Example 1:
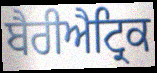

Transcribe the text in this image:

ਬੈਰੀਐਟ੍ਰਿਕ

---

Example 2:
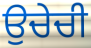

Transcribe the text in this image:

ਉਚੇਚੀ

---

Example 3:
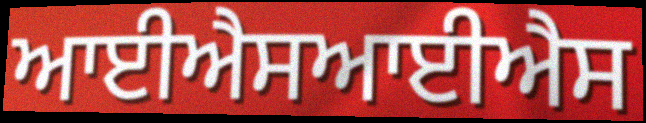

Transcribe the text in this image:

ਆਈਐਸਆਈਐਸ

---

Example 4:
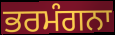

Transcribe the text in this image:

ਭਰਮੰਗਨਾ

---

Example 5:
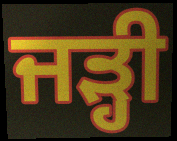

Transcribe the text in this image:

ਜੜ੍ਹੀ